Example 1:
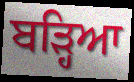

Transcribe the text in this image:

ਬੜ੍ਹਿਆ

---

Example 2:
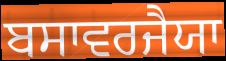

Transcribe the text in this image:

ਬਸਾਵਰਜੈਯਾ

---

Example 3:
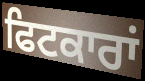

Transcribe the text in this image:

ਫਿਟਕਾਰਾਂ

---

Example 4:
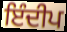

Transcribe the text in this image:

ਇੰਦੀਪ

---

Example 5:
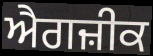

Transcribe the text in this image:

ਐਗਜ਼ੀਕ